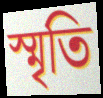
স্মৃতি